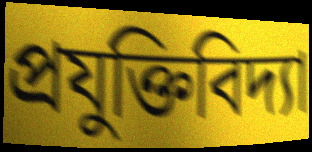
প্ৰযুক্তিবিদ্যা